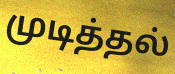
முடித்தல்